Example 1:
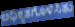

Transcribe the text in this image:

ಅಧಿಕೃತಗೊಳಿಸಿತು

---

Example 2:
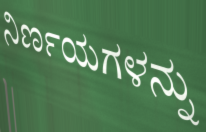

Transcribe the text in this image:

ನಿರ್ಣಯಗಳನ್ನು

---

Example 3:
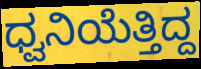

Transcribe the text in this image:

ಧ್ವನಿಯೆತ್ತಿದ್ದ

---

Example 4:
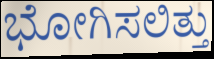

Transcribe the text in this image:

ಭೋಗಿಸಲಿತ್ತು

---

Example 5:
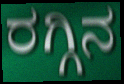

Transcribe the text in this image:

ರಗ್ಗಿನ